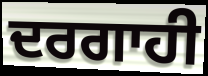
ਦਰਗਾਹੀ